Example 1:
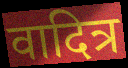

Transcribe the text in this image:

वादित्र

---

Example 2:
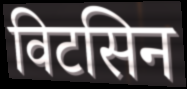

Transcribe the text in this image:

विटसिन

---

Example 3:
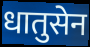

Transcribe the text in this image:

धातुसेन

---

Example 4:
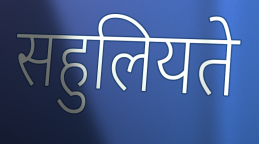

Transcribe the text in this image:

सहुलियते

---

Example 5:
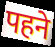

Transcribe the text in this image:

पहने